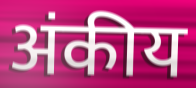
अंकीय